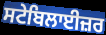
ਸਟੇਬਿਲਾਈਜ਼ਰ